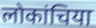
लोकांचिया